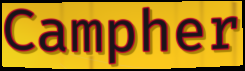
Campher